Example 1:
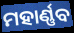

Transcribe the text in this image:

ମହାର୍ଣ୍ଣବ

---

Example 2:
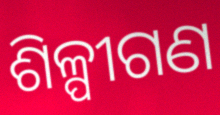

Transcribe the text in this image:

ଶିଳ୍ପୀଗଣ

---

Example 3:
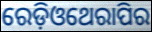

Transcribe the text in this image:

ରେଡ଼ିଓଥେରାପିର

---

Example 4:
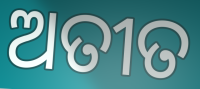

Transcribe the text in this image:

ଅତୀତ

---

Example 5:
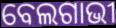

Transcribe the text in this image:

ବେଲଗାଭୀ